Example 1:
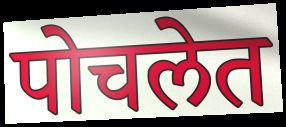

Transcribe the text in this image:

पोचलेत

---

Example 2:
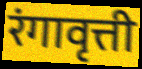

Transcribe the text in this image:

रंगावृत्ती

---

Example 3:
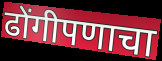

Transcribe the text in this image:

ढोंगीपणाचा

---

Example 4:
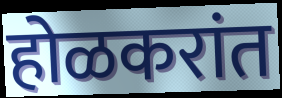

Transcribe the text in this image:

होळकरांत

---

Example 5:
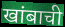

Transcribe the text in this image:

खांबाची